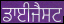
ਡਾਈਜੈਸਟ